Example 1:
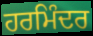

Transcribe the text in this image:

ਹਰਮਿੰਦਰ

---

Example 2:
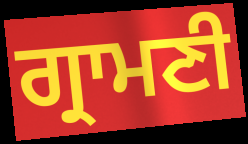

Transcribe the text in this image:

ਗ੍ਰਾਮਣੀ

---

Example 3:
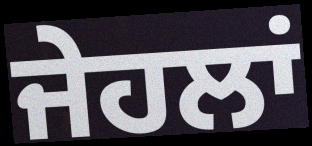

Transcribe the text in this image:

ਜੇਹਲਾਂ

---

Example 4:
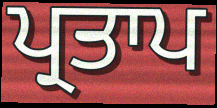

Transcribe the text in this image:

ਪ੍ਰਤਾਪ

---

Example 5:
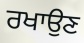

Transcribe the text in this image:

ਰਖਾਉਣ